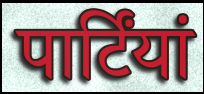
पार्टिंयां